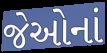
જેઓનાં